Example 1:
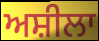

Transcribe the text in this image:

ਅਸ਼ੀਲਾ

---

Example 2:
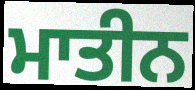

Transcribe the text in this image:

ਮਾਤੀਨ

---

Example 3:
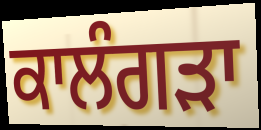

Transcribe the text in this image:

ਕਾਲੰਗੜਾ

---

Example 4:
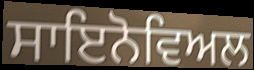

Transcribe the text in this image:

ਸਾਇਨੋਵਿਅਲ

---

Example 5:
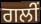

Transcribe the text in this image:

ਗਲੀਂ